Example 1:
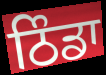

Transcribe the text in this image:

ਠਿੰਡਾ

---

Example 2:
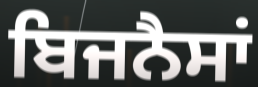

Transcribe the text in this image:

ਬਿਜਨੈਸਾਂ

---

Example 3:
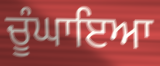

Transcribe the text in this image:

ਚੂੰਘਾਇਆ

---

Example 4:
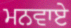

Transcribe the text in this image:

ਮਨਵਾਏ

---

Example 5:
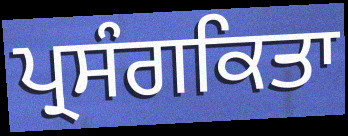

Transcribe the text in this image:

ਪ੍ਰਸੰਗਕਿਤਾ